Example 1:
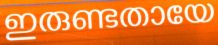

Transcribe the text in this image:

ഇരുണ്ടതായേ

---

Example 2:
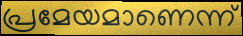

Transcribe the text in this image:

പ്രമേയമാണെന്ന്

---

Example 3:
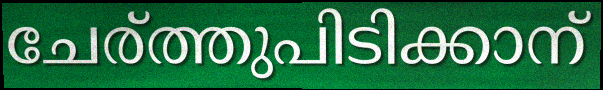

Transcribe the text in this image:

ചേര്ത്തുപിടിക്കാന്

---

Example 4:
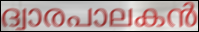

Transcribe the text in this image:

ദ്വാരപാലകൻ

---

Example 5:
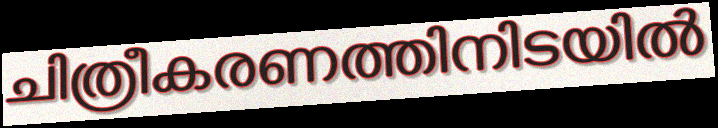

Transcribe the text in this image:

ചിത്രീകരണത്തിനിടയിൽ